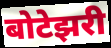
बोटेझरी